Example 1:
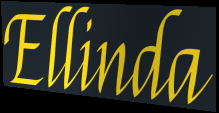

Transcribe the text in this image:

Ellinda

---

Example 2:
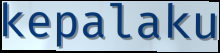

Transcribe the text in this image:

kepalaku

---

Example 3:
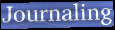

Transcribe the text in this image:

Journaling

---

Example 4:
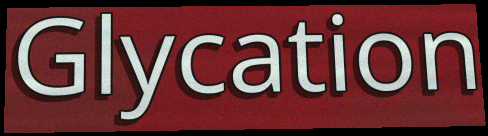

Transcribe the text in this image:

Glycation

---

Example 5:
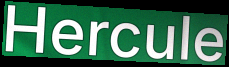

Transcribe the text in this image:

Hercule